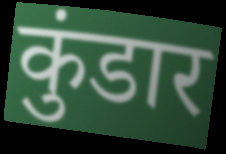
कुंडार